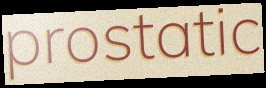
prostatic